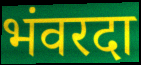
भंवरदा